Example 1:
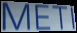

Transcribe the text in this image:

METI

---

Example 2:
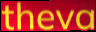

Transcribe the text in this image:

theva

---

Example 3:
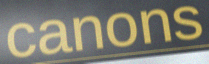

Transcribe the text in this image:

canons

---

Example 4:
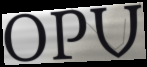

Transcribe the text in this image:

OPU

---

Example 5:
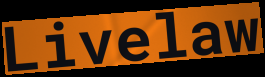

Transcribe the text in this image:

Livelaw